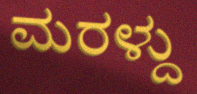
ಮರಳ್ದು